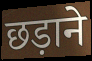
छड़ाने